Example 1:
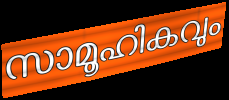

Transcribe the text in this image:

സാമൂഹികവും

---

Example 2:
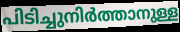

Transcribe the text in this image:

പിടിച്ചുനിർത്താനുള്ള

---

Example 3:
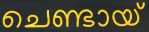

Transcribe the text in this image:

ചെണ്ടായ്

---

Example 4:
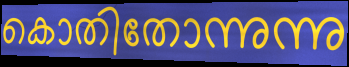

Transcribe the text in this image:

കൊതിതോന്നുന്നു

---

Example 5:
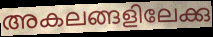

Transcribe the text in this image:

അകലങ്ങളിലേക്കു